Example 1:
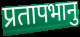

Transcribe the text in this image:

प्रतापभानु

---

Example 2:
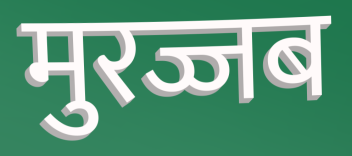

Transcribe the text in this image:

मुरज्जब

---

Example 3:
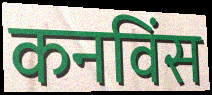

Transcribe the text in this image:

कनविंस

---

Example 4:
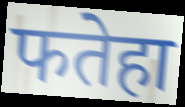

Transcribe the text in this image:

फतेहा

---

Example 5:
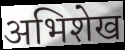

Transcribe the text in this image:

अभिशेख